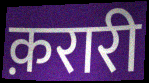
क़रारी